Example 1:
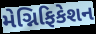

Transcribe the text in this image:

મેગ્નિફિકેશન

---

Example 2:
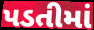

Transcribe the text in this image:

પડતીમાં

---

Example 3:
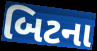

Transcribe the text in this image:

બિટના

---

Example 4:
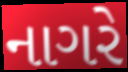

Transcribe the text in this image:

નાગરે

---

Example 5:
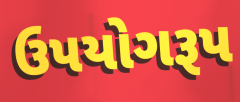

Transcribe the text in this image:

ઉપયોગરૂપ